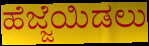
ಹೆಜ್ಜೆಯಿಡಲು